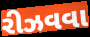
રીઝવવા